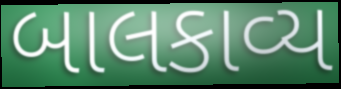
બાલકાવ્ય